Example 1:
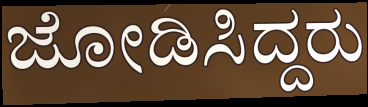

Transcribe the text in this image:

ಜೋಡಿಸಿದ್ದರು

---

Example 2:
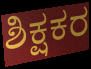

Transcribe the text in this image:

ಶಿಕ್ಷಕರ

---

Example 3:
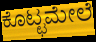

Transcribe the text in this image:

ಕೊಟ್ಟಮೇಲೆ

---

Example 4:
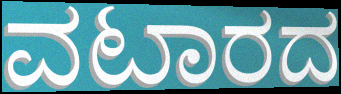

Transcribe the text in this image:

ವಟಾರದ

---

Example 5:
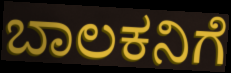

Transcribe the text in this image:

ಬಾಲಕನಿಗೆ